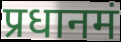
प्रधानमं